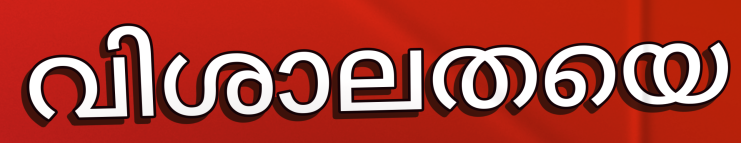
വിശാലതയെ